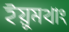
ইয়ুমথাং